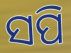
ସପି